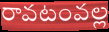
రావటంవల్ల